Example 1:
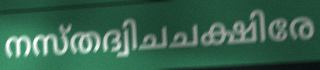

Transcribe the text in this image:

നസ്തദ്വിചചക്ഷിരേ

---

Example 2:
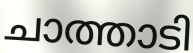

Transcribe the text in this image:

ചാത്താടി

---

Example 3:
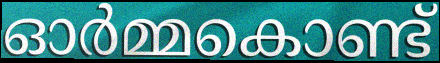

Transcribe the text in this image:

ഓർമ്മകൊണ്ട്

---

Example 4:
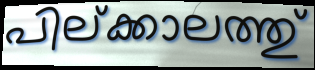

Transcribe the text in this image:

പില്ക്കാലത്തു്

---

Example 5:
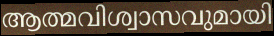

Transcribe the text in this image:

ആത്മവിശ്വാസവുമായി